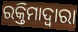
ରକ୍ତିମାଦ୍ୱାରା